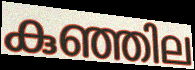
കുഞ്ഞില